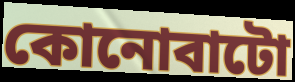
কোনোবাটো